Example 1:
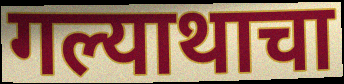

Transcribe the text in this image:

गल्याथाचा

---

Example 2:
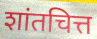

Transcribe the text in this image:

शांतचित्त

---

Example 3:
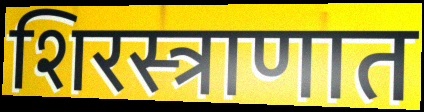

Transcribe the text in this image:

शिरस्त्राणात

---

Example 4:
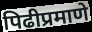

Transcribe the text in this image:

पिढीप्रमाणे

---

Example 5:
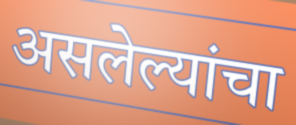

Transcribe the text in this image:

असलेल्यांचा